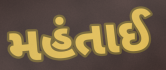
મહંતાઈ